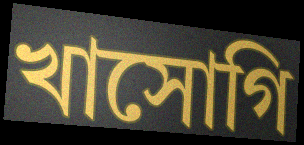
খাসোগি